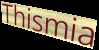
Thismia